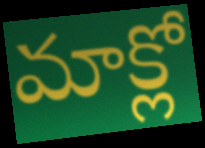
మాక్లో